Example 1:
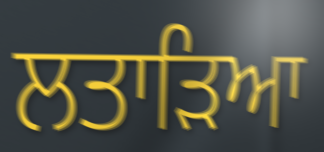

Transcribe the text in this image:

ਲਤਾੜਿਆ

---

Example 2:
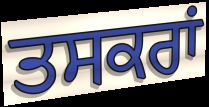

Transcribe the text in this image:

ਤਸਕਰਾਂ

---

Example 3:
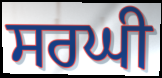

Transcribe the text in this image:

ਸਰਘੀ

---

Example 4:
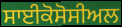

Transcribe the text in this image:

ਸਾਈਕੋਸੋਸੀਅਲ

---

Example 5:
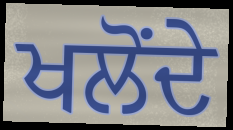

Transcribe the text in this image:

ਖਲੋਂਦੇ